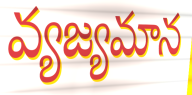
వ్యజ్యమాన